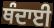
ਥੰਦਾਈ